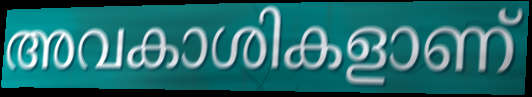
അവകാശികളാണ്